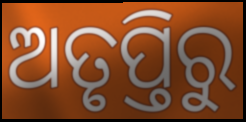
ଅତୃପ୍ତିରୁ